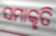
ସମାକୃତି